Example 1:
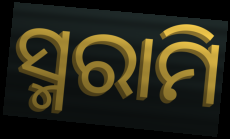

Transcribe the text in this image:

ସ୍ମରାମି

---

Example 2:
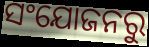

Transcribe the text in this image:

ସଂଯୋଜନରୁ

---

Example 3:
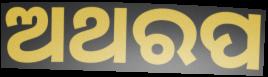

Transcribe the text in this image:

ଅଥରପ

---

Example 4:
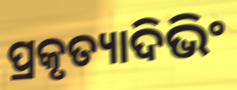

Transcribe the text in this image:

ପ୍ରକୃତ୍ୟାଦିଭିଂ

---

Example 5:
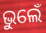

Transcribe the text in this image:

ଭୁଲେଁ